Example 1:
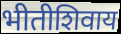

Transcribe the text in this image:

भीतीशिवाय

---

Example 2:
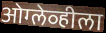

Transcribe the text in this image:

ओग्लेव्हीला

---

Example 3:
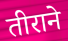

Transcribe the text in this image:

तीराने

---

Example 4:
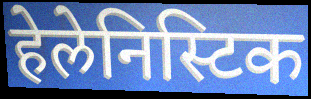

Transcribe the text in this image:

हेलेनिस्टिक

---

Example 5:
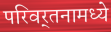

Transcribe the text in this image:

परिवर्तनामध्ये